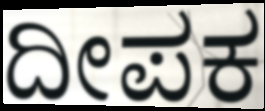
ದೀಪಕ